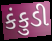
કંકુડી